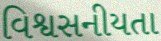
વિશ્વસનીયતા